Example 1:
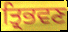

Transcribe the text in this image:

ਤ੍ਰਿਭਵਣ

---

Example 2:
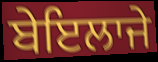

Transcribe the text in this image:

ਬੇਇਲਾਜੇ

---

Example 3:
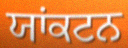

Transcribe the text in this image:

ਯਾਂਕਟਨ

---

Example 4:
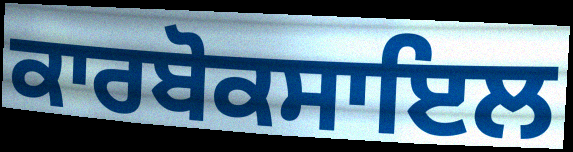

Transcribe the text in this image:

ਕਾਰਬੋਕਸਾਇਲ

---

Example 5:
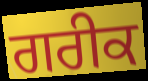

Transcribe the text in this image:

ਗਰੀਕ